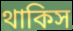
থাকিস